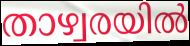
താഴ്വരയിൽ